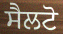
ਸੈਲਟੋ